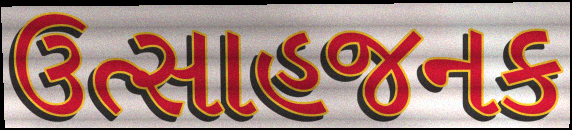
ઉત્સાહજનક